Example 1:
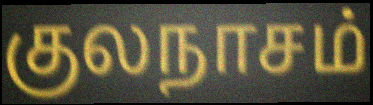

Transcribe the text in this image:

குலநாசம்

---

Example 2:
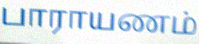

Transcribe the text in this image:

பாராயணம்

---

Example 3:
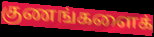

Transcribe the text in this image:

குணங்களைக்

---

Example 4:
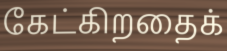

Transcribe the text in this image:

கேட்கிறதைக்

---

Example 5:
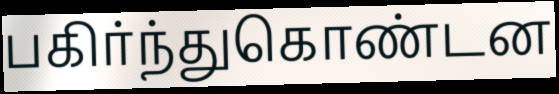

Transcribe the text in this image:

பகிர்ந்துகொண்டன